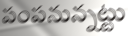
పంపనున్నట్టు